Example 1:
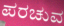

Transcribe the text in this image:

ಪರಚುವ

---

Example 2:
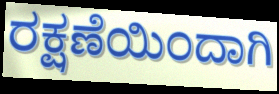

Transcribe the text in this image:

ರಕ್ಷಣೆಯಿಂದಾಗಿ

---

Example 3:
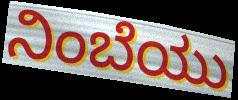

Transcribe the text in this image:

ನಿಂಬೆಯು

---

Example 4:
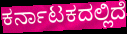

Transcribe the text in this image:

ಕರ್ನಾಟಕದಲ್ಲಿದೆ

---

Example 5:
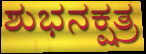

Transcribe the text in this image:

ಶುಭನಕ್ಷತ್ರ